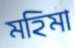
মহিমা